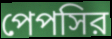
পেপসির